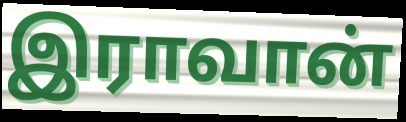
இராவான்